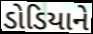
ડોડિયાને